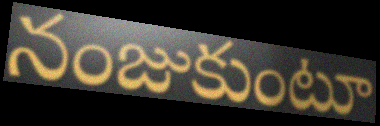
నంజుకుంటూ